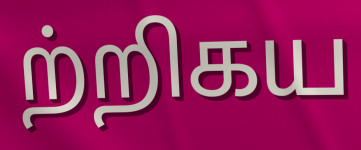
ற்றிகய